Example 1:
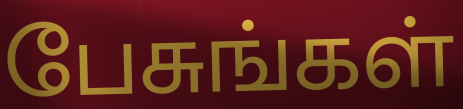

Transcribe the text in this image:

பேசுங்கள்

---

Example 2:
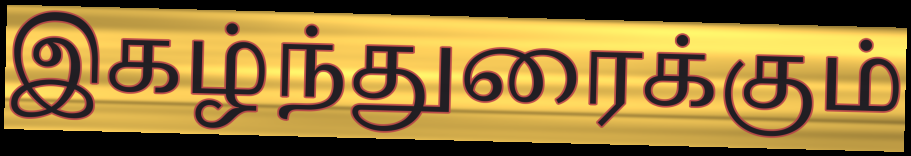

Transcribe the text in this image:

இகழ்ந்துரைக்கும்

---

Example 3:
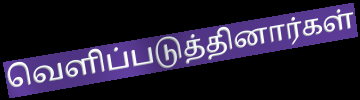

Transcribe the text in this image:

வெளிப்படுத்தினார்கள்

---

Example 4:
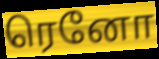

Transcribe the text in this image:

ரெனோ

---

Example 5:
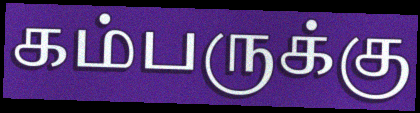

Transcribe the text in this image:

கம்பருக்கு